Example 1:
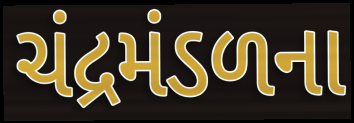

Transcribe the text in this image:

ચંદ્રમંડળના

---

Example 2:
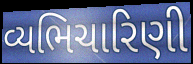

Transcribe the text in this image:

વ્યભિચારિણી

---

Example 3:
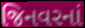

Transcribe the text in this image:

જિનવરનાં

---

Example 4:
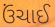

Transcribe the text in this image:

ઉંચાઈ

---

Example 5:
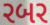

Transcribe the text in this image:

રબર